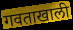
गवताखाली